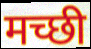
मच्छी